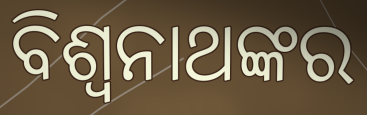
ବିଶ୍ୱନାଥଙ୍କର